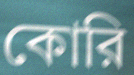
কোরি